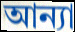
আন্যা